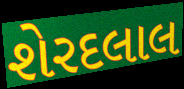
શેરદલાલ